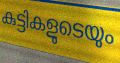
കുട്ടികളുടെയും